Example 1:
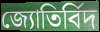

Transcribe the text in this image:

জ্যোতির্বিদ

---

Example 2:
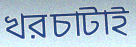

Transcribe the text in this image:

খরচাটাই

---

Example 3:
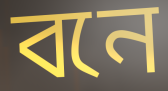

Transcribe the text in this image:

বনে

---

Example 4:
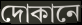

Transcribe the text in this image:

দোকানে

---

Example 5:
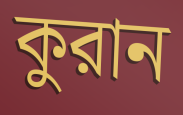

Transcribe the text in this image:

কুরান